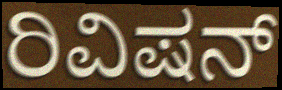
ರಿವಿಷನ್